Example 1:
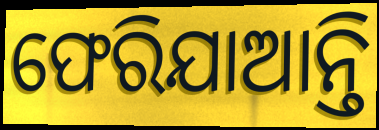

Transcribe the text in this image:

ଫେରିଯାଆନ୍ତି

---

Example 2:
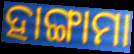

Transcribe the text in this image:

ହାଙ୍ଗାମା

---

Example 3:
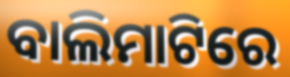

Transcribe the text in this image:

ବାଲିମାଟିରେ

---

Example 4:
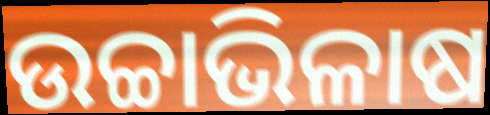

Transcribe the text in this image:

ଉଚ୍ଚାଭିଳାଷ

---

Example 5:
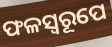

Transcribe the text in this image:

ଫଳସ୍ୱରୂପେ